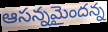
ఆసన్నమైందన్న